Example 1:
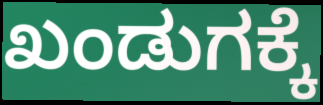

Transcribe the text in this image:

ಖಂಡುಗಕ್ಕೆ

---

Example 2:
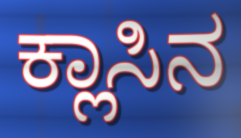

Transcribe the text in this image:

ಕ್ಲಾಸಿನ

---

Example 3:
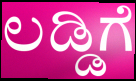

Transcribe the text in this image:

ಲಡ್ಡಿಗೆ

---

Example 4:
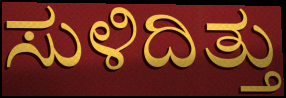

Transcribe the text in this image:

ಸುಳಿದಿತ್ತು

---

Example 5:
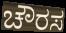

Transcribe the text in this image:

ಚೌರಸ